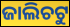
ଜାଲିଚଟୁ